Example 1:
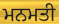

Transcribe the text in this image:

ਮਨਮਤੀ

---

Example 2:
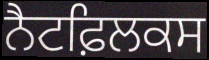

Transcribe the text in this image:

ਨੈਟਫ਼ਿਲਕਸ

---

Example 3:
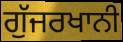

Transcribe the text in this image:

ਗੁੱਜਰਖਾਨੀ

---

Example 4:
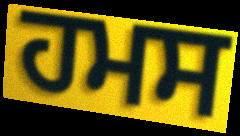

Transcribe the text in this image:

ਹਮਸ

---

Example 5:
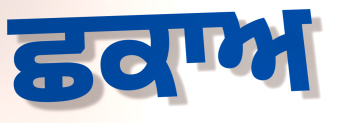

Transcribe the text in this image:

ਛਕਾਅ